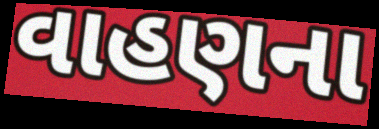
વાહણના